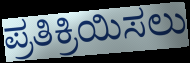
ಪ್ರತಿಕ್ರಿಯಿಸಲು